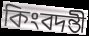
কিংবদন্তী